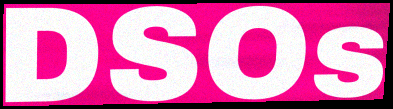
DSOs